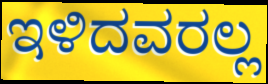
ಇಳಿದವರಲ್ಲ